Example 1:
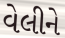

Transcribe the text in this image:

વેલીને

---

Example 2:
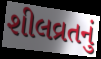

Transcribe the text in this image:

શીલવ્રતનું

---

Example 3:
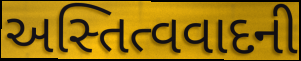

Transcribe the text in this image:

અસ્તિત્વવાદની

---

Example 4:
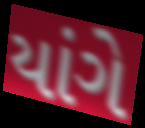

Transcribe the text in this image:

યાંગે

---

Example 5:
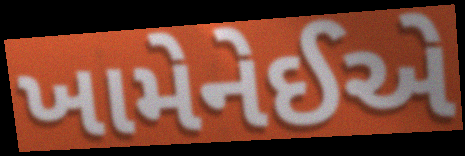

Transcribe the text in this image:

ખામેનેઈએ